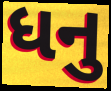
ધનુ